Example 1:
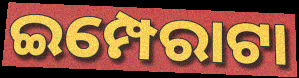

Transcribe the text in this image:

ଇମ୍ପେରାଟା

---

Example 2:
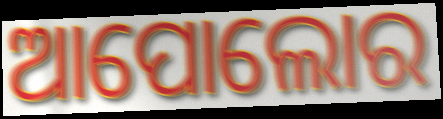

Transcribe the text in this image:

ଆପୋଲୋର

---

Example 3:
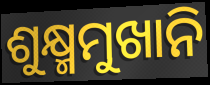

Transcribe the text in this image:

ଶୁକ୍ଷ୍ମମୁଖାନି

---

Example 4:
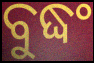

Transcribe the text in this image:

ବୁଦ୍ଧଂ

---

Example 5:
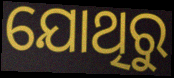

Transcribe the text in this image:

ଯୋଥିରୁ